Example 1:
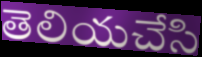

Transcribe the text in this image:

తెలియచేసి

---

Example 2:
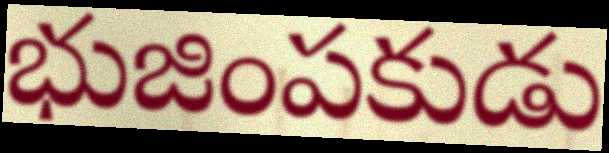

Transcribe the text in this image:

భుజింపకుడు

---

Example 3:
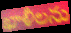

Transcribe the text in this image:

ఖాళీలను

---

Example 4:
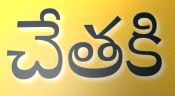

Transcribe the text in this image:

చేతకి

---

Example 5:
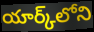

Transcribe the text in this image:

యార్క్‌లోని